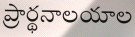
ప్రార్థనాలయాల